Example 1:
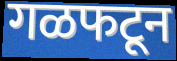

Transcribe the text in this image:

गळफटून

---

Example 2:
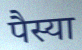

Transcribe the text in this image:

पैस्या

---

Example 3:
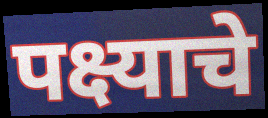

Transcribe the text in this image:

पक्ष्याचे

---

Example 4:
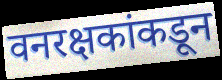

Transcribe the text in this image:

वनरक्षकांकडून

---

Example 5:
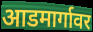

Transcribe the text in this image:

आडमार्गावर